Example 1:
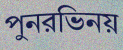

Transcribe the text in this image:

পুনরভিনয়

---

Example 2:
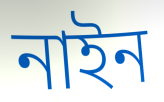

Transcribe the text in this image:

নাইন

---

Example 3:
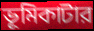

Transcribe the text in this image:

ভূমিকাটার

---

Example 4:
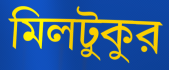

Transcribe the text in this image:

মিলটুকুর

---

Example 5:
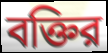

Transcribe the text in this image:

বক্তির